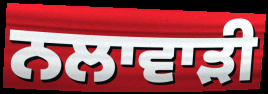
ਨਲਾਵਾੜੀ